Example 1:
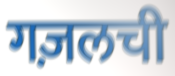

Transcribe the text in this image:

गज़लची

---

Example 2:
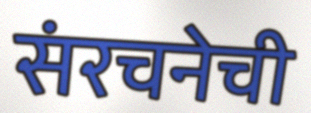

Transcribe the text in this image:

संरचनेची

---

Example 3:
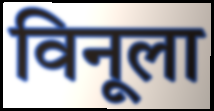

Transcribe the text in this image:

विनूला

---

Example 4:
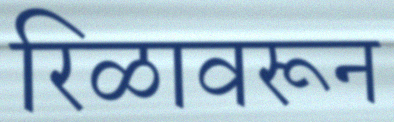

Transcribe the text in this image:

रिळावरून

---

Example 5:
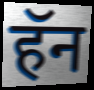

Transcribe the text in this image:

हॅन